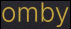
omby